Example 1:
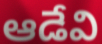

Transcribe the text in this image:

ఆడేవి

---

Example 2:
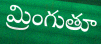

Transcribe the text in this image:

మ్రింగుతూ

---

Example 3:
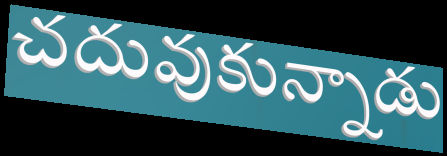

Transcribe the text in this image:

చదువుకున్నాడు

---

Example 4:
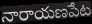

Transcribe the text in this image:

నారాయణపేట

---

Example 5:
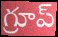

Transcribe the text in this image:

గ్రూప్